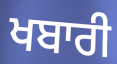
ਖਬਾਰੀ